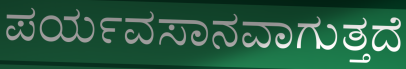
ಪರ್ಯವಸಾನವಾಗುತ್ತದೆ